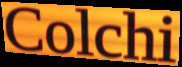
Colchi